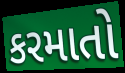
કરમાતો